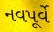
નવપૂર્વે